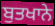
ਬੁਤਖਾਨੇ